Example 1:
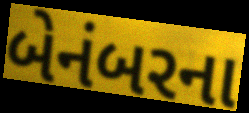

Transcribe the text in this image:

બેનંબરના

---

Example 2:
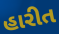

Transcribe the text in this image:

હારીત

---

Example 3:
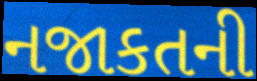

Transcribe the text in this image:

નજાકતની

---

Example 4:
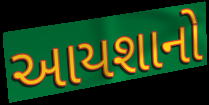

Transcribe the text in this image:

આયશાનો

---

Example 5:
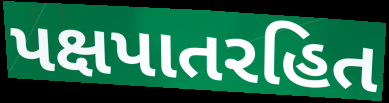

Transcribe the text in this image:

પક્ષપાતરહિત